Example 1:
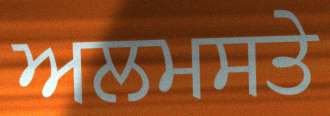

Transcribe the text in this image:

ਅਲਮਸਤੇ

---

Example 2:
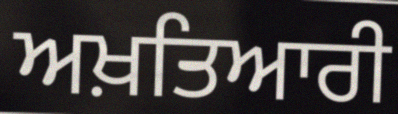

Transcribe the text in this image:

ਅਖ਼ਤਿਆਰੀ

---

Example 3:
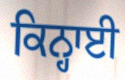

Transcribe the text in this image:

ਕਿਨ੍ਹਾਈ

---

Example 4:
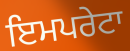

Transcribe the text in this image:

ਇਮਪਰੇਟਾ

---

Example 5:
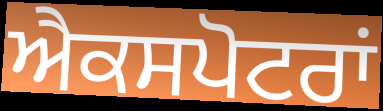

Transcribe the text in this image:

ਐਕਸਪੋਟਰਾਂ